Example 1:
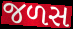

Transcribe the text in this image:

જળસ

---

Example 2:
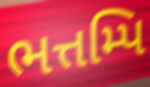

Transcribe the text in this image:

ભત્તમ્પિ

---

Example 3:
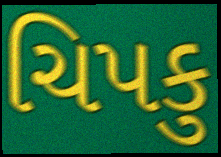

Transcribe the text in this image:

ચિપકુ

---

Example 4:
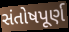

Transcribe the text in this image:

સંતોષપૂર્ણ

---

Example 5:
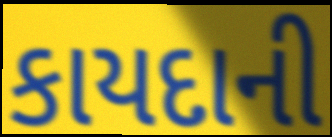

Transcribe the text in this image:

કાયદાની